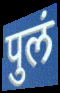
पुलं